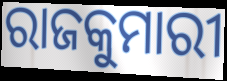
ରାଜକୁମାରୀ